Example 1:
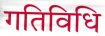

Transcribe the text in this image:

गतिविधि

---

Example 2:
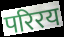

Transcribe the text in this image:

परिरय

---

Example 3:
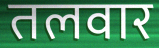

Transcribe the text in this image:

तलवार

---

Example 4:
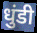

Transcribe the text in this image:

धुंडी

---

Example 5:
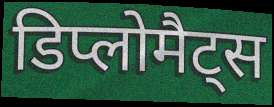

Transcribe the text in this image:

डिप्लोमैट्स